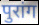
पुरांग